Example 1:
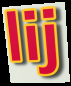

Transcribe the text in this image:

lij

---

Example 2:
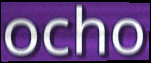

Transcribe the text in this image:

ocho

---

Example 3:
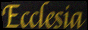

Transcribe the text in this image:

Ecclesia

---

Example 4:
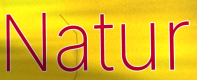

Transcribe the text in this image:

Natur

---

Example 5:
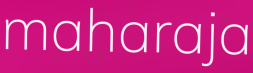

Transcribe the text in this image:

maharaja